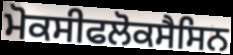
ਮੋਕਸੀਫਲੋਕਸੈਸਿਨ